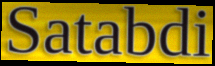
Satabdi